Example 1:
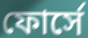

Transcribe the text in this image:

ফোর্সে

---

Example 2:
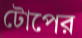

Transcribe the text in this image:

টোপের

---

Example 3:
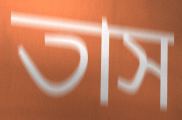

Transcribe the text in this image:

তাস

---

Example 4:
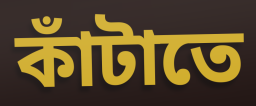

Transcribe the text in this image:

কাঁটাতে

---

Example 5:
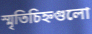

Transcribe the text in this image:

স্মৃতিচিহ্নগুলো